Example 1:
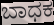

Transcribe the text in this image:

ಬಾಧಕ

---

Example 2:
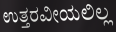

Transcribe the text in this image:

ಉತ್ತರವೀಯಲಿಲ್ಲ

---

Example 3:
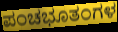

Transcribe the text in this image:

ಪಂಚಭೂತಂಗಳ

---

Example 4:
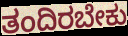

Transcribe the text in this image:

ತಂದಿರಬೇಕು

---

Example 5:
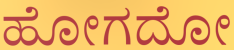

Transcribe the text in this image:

ಹೋಗದೋ